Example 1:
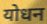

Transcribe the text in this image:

योधन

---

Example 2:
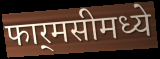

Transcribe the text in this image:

फार्मसीमध्ये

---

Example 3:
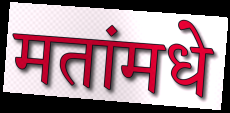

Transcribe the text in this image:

मतांमधे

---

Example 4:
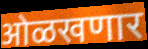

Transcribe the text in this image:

ओळखणार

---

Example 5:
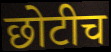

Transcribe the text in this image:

छोटीच